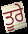
ਤੂਰੇ